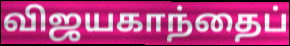
விஜயகாந்தைப்